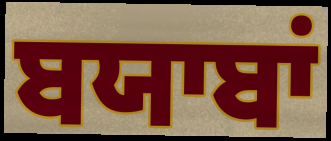
ਬਯਾਬਾਂ